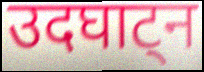
उदघाट्न